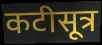
कटीसूत्र